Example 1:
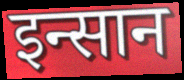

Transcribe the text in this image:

इन्सान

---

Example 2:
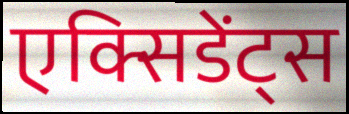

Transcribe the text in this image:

एक्सिडेंट्स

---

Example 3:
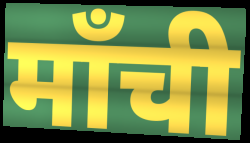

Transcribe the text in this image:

माँची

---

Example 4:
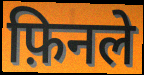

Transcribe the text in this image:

फ़िनले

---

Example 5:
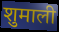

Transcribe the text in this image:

शुमाली